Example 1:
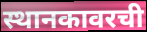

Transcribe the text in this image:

स्थानकावरची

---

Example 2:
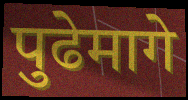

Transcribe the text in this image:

पुढेमागे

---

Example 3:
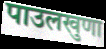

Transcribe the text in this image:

पाउलखुणा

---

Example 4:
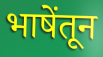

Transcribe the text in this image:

भाषेंतून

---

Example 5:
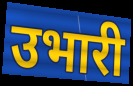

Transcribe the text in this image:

उभारी